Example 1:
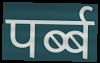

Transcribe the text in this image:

पर्ब्ब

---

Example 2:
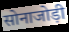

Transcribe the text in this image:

सोनाजोड़ी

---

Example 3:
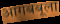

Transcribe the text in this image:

आगबबूला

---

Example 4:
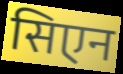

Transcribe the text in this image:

सिएन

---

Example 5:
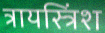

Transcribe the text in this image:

त्रायस्त्रिंश